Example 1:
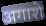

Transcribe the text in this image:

अगाशे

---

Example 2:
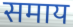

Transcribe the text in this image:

समाय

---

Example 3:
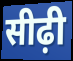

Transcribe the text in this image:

सीढ़ी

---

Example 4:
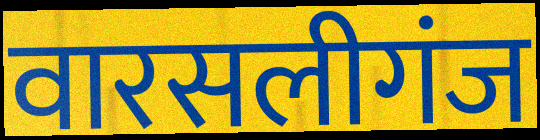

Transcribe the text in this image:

वारसलीगंज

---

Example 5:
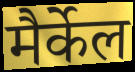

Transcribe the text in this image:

मैर्केल